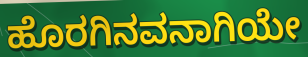
ಹೊರಗಿನವನಾಗಿಯೇ